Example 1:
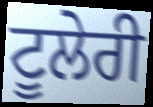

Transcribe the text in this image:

ਟੂਲੇਰੀ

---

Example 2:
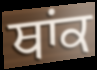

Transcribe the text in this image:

ਥਾਂਕ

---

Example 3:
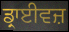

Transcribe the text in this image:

ਡ੍ਰਾਈਵਜ਼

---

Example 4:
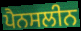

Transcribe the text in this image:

ਪੈਨਸਲੀਨ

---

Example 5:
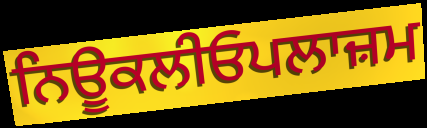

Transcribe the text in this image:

ਨਿਊਕਲੀਓਪਲਾਜ਼ਮ